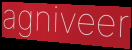
agniveer